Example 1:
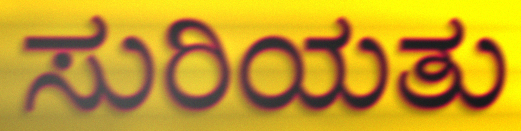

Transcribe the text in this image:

ಸುರಿಯತು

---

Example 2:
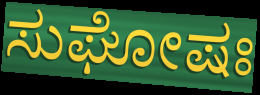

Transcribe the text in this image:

ಸುಘೋಷಃ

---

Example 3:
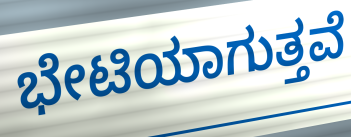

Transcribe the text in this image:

ಭೇಟಿಯಾಗುತ್ತವೆ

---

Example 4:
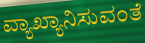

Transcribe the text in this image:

ವ್ಯಾಖ್ಯಾನಿಸುವಂತೆ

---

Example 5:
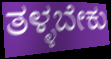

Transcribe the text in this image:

ತಳ್ಳಬೇಕು